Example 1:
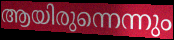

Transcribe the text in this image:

ആയിരുന്നെന്നും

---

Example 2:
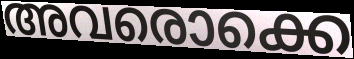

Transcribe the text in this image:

അവരൊക്കെ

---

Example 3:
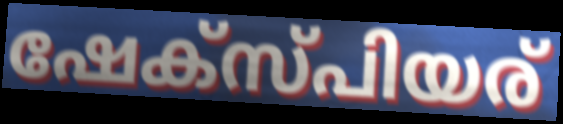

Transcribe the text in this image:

ഷേക്സ്പിയര്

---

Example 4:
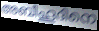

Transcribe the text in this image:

അബീഹൂദിനെ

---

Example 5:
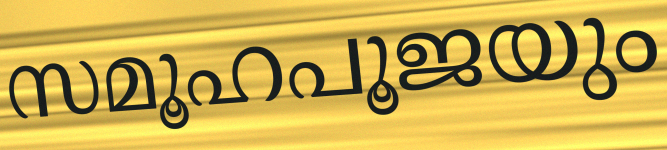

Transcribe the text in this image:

സമൂഹപൂജയും